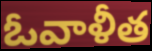
ఓవాళీత